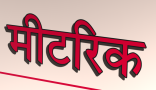
मीटरिक